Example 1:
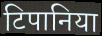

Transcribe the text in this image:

टिपानिया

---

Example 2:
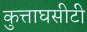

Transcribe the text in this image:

कुत्ताघसीटी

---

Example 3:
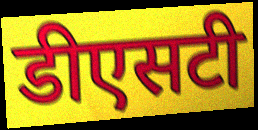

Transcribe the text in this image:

डीएसटी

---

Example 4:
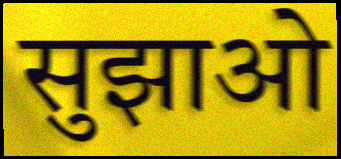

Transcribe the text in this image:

सुझाओ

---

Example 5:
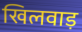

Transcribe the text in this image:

खिलवाड़